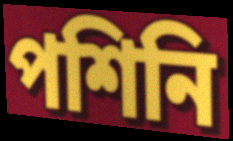
পশিনি